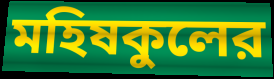
মহিষকুলের